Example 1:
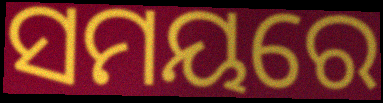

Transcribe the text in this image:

ସମୟରେ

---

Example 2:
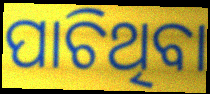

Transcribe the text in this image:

ପାଚିଥିବା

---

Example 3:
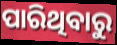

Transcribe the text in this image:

ପାରିଥିବାରୁ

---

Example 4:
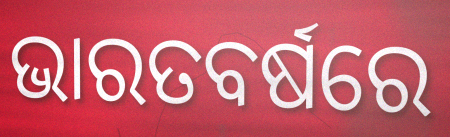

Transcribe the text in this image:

ଭାରତବର୍ଷରେ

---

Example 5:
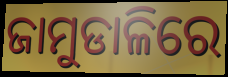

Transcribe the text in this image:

ଜାମୁଡାଳିରେ